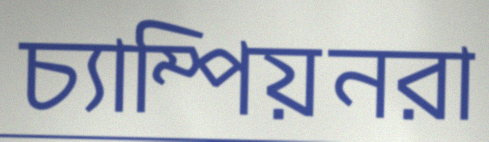
চ্যাম্পিয়নরা